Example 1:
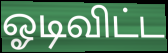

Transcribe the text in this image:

ஓடிவிட்ட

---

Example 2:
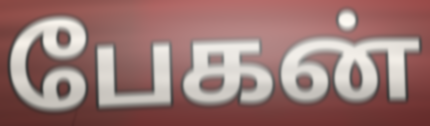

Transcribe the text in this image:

பேகன்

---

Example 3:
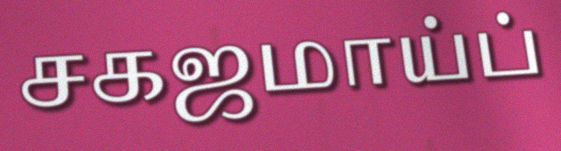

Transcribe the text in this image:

சகஜமாய்ப்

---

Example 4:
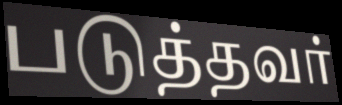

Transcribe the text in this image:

படுத்தவர்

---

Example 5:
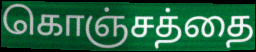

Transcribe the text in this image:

கொஞ்சத்தை